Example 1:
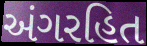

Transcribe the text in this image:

અંગરહિત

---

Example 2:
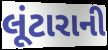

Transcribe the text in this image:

લૂંટારાની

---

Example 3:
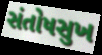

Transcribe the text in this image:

સંતોષસુખ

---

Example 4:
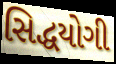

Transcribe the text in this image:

સિદ્ધયોગી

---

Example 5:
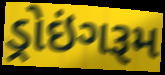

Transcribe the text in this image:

ડ્રોઇંગરૂમ